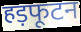
हड़फूटन